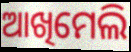
ଆଖିମେଲି